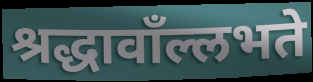
श्रद्धावाँल्लभते